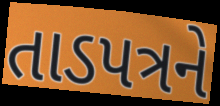
તાડપત્રને